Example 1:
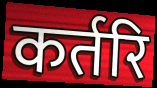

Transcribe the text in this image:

कर्तरि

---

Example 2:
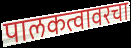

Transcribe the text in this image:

पालकत्वावरचा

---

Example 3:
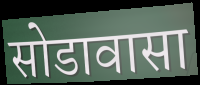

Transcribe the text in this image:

सोडावासा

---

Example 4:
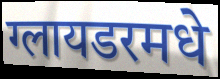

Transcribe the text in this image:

ग्लायडरमधे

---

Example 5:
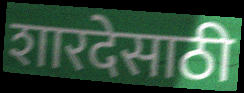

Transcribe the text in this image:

शारदेसाठी